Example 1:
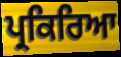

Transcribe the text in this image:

ਪ੍ਰਕਿਰਿਆ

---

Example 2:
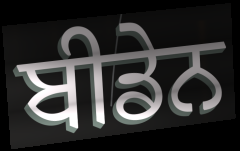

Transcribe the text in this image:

ਬੀਡੇਨ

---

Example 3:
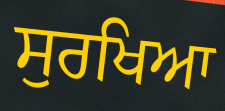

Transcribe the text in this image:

ਸੁਰਖਿਆ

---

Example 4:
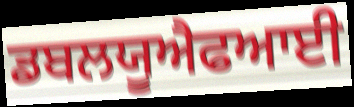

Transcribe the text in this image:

ਡਬਲਯੂਐਫਆਈ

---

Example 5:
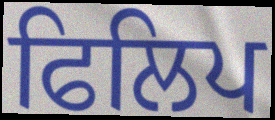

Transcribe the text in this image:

ਫਿਲਿਪ